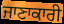
ਜਾਣਾਕਾਰੀ